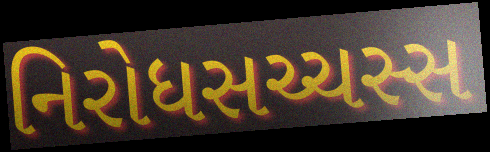
નિરોધસચ્ચસ્સ